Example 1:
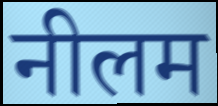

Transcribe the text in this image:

नीलम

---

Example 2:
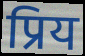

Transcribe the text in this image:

प्रिय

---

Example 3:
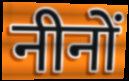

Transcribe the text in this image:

नीनों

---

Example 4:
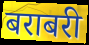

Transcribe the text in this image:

बराबरी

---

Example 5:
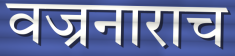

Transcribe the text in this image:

वज्रनाराच